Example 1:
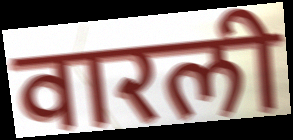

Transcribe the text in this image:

वारली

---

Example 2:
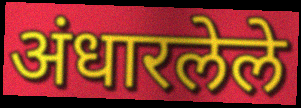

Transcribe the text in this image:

अंधारलेले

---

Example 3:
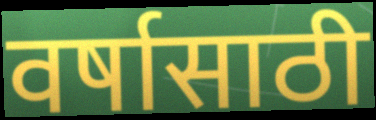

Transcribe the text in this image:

वर्षासाठी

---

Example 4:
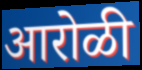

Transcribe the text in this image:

आरोळी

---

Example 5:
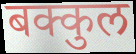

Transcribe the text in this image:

बक्कुल